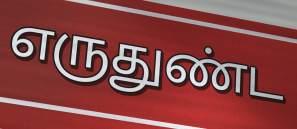
எருதுண்ட